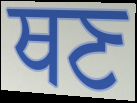
ਥਣ